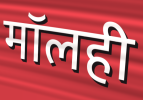
मॉलही